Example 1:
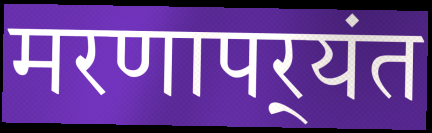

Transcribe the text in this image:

मरणापर्यंत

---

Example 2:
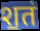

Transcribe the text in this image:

श॒तं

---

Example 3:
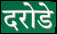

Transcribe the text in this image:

दरोडे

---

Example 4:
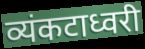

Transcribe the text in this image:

व्यंकटाध्वरी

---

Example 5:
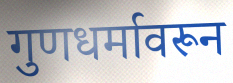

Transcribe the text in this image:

गुणधर्मावरून